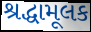
શ્રદ્ધામૂલક